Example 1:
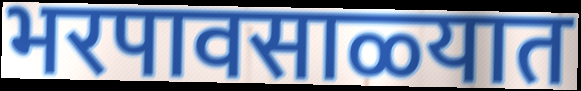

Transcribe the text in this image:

भरपावसाळ्यात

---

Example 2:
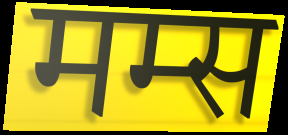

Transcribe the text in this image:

मम्स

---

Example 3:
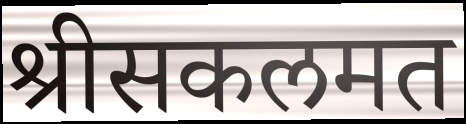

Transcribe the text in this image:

श्रीसकलमत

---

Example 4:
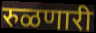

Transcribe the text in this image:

रुळणारी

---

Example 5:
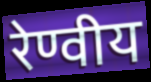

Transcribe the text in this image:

रेण्वीय